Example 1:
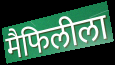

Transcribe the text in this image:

मैफिलीला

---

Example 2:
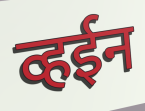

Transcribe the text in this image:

व्हईन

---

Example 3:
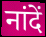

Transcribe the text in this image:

नांदें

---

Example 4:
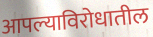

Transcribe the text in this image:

आपल्याविरोधातील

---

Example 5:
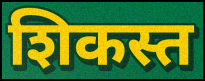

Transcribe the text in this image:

शिकस्त